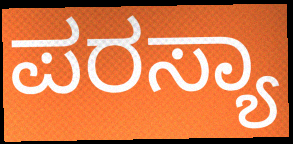
ಪರಸ್ಯಾ